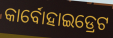
କାର୍ବୋହାଇଡ୍ରେଟ